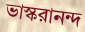
ভাস্করানন্দ